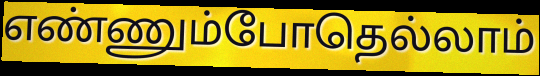
எண்ணும்போதெல்லாம்